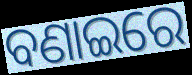
ବଣାଇରେ